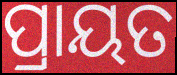
ପ୍ରାୟତ